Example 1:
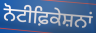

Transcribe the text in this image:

ਨੋਟੀਫ਼ਿਕੇਸ਼ਨਾਂ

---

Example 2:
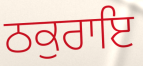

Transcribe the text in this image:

ਠਕੁਰਾਇ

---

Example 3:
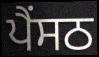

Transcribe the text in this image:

ਪੈਂਸਠ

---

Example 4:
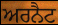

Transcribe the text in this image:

ਅਰਨੈਟ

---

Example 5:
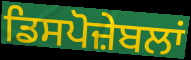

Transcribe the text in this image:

ਡਿਸਪੋਜ਼ੇਬਲਾਂ